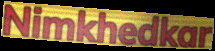
Nimkhedkar